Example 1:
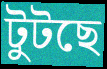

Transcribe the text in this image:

টুটছে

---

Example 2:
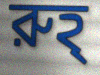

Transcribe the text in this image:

রুহ্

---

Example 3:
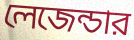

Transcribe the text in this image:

লেজেন্ডার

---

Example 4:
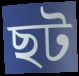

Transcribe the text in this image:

ছট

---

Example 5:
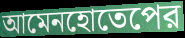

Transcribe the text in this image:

আমেনহোতেপের